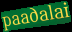
paadalai